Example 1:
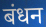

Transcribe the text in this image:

बंधन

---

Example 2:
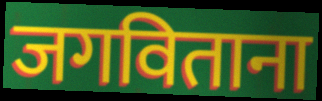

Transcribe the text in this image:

जगविताना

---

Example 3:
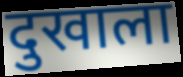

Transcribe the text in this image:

दुखाला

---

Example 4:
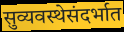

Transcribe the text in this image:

सुव्यवस्थेसंदर्भात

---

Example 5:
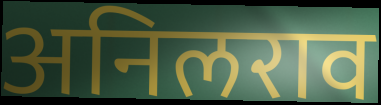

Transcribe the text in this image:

अनिलराव